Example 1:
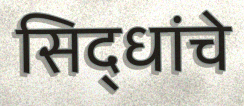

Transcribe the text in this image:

सिद्धांचे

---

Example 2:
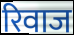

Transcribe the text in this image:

रिवाज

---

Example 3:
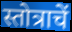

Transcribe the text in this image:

स्तोत्राचें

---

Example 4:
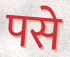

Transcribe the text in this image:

पसे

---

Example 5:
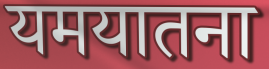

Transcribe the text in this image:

यमयातना